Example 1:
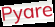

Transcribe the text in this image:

Pyare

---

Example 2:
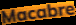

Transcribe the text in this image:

Macabre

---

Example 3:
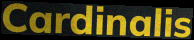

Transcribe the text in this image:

Cardinalis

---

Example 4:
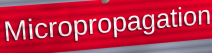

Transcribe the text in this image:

Micropropagation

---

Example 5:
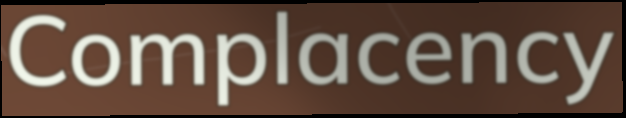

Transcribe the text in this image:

Complacency